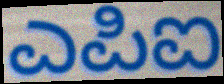
ಎಪಿಐ